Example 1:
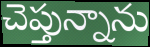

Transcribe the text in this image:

చెప్తున్నాను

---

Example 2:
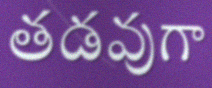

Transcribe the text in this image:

తడవుగా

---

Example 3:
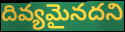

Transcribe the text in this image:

దివ్యమైనదని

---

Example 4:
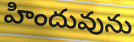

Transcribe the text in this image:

హిందువును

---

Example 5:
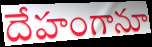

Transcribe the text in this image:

దేహంగానూ